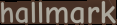
hallmark